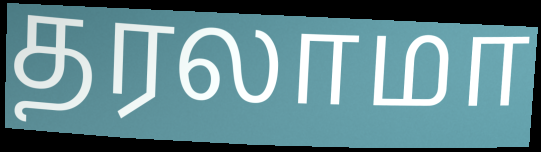
தரலாமா